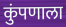
कुंपणाला